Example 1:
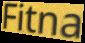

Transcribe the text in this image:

Fitna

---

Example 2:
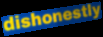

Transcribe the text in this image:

dishonestly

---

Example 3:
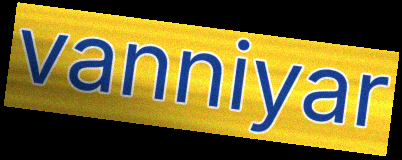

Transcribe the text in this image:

vanniyar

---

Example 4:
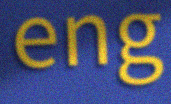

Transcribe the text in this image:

eng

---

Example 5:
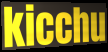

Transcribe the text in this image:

kicchu